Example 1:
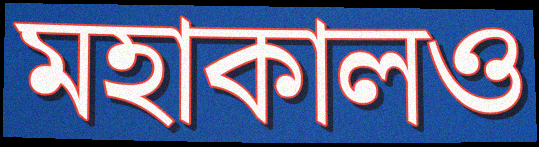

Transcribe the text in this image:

মহাকালও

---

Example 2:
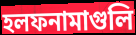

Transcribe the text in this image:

হলফনামাগুলি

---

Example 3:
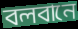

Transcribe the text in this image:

বলবানে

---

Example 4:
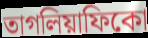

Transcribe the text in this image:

তাগলিয়াফিকো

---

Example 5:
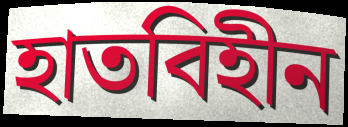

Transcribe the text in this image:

হাতবিহীন